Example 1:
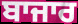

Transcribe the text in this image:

ਬਾਜਾਰ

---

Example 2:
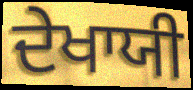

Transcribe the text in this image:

ਦੇਖਾਯੀ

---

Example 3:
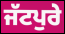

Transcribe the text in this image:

ਜੱਟਪੁਰੇ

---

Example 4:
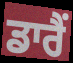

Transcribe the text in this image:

ਡਾਰੈਂ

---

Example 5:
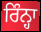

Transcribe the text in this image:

ਰਿੰਨ੍ਹਾ